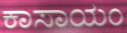
ಕಾಸಾಯಂ